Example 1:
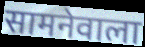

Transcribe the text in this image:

सामनेवाला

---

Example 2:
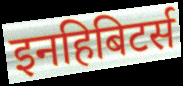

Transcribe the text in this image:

इनहिबिटर्स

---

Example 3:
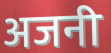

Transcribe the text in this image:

अजनी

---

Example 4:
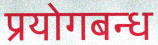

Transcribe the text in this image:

प्रयोगबन्ध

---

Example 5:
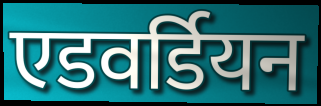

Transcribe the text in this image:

एडवर्डियन